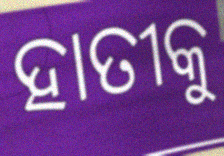
ହାତୀକୁ